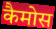
कैमोस